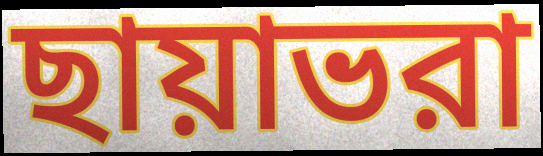
ছায়াভরা